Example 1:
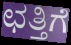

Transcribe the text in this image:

ಛತ್ತಿಗೆ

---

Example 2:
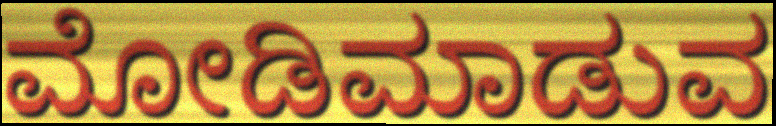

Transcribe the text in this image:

ಮೋಡಿಮಾಡುವ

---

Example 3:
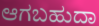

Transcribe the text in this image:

ಆಗಬಹುದಾ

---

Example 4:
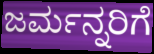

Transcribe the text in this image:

ಜರ್ಮನ್ನರಿಗೆ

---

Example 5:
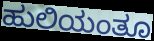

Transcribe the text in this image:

ಹುಲಿಯಂತೂ